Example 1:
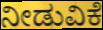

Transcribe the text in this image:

ನೀಡುವಿಕೆ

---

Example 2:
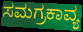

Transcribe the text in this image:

ಸಮಗ್ರಕಾವ್ಯ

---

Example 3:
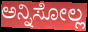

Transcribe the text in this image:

ಅನ್ನಿಸೋಲ್ಲ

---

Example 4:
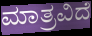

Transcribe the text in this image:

ಮಾತ್ರವಿದೆ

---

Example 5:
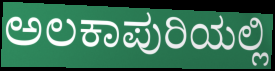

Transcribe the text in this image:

ಅಲಕಾಪುರಿಯಲ್ಲಿ